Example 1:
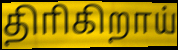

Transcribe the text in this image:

திரிகிறாய்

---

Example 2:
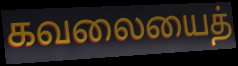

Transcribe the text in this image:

கவலையைத்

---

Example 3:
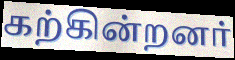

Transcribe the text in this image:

கற்கின்றனர்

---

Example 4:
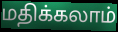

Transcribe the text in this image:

மதிக்கலாம்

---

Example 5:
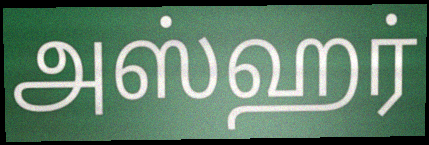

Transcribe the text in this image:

அஸ்ஹர்